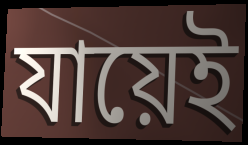
যায়েই